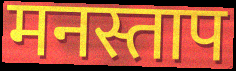
मनस्ताप